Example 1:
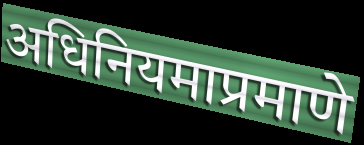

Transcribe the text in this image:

अधिनियमाप्रमाणे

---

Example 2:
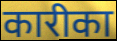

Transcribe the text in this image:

कारीका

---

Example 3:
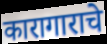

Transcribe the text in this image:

कारागाराचे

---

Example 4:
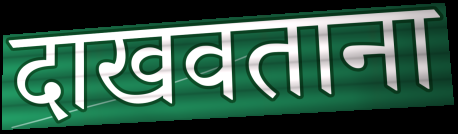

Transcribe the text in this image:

दाखवताना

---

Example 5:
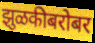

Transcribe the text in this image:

झुळकीबरोबर